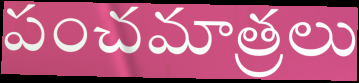
పంచమాత్రలు